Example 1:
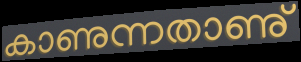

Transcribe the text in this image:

കാണുന്നതാണു്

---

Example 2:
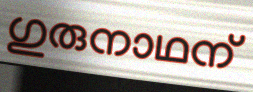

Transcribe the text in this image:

ഗുരുനാഥന്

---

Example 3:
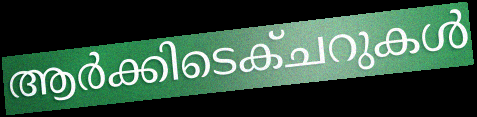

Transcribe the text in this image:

ആർക്കിടെക്ചറുകൾ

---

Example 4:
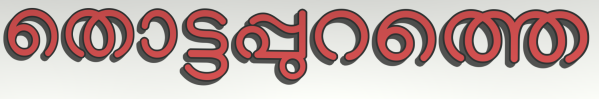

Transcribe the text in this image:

തൊട്ടപ്പുറത്തെ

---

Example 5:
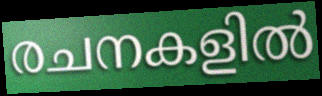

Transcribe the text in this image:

രചനകളിൽ